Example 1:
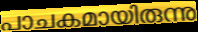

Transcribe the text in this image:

പാചകമായിരുന്നു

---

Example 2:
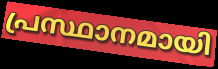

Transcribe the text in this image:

പ്രസ്ഥാനമായി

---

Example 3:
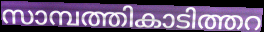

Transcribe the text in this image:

സാമ്പത്തികാടിത്തറ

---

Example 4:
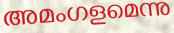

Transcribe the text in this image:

അമംഗളമെന്നു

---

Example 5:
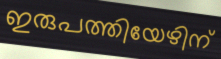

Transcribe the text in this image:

ഇരുപത്തിയേഴിന്